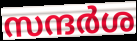
സന്ദർശ